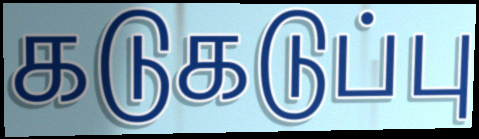
கடுகடுப்பு